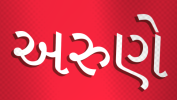
અરુણે